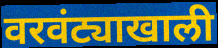
वरवंट्याखाली